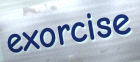
exorcise